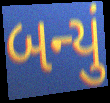
બન્યું